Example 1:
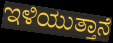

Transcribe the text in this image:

ಇಳಿಯುತ್ತಾನೆ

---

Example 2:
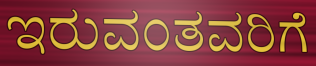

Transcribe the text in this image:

ಇರುವಂತವರಿಗೆ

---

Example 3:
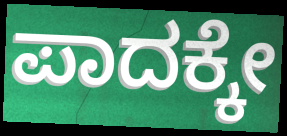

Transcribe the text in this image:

ಪಾದಕ್ಕೇ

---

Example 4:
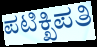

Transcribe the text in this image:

ಪಟಿಕ್ಖಿಪತಿ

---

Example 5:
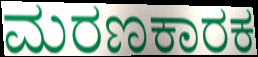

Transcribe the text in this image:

ಮರಣಕಾರಕ